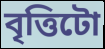
বৃত্তিটো